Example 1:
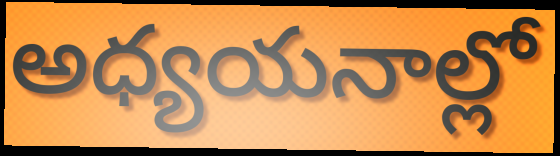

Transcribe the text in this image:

అధ్యయనాల్లో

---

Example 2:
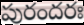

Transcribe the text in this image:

పురందరః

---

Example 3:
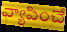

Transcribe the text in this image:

వ్యాపించే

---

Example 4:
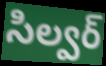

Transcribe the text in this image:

సిల్వర్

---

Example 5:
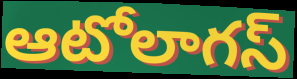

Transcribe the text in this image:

ఆటోలాగస్